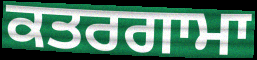
ਕਤਰਗਾਮਾ